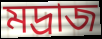
মদ্রাজ